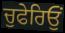
ਚੁਫੇਰਿਓੁਂ